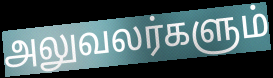
அலுவலர்களும்